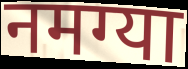
नमग्या